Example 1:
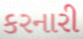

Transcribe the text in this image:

કરનારી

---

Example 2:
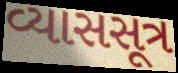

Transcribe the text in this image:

વ્યાસસૂત્ર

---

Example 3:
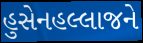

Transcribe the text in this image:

હુસેનહલ્લાજને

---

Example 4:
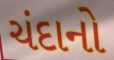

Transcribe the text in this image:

ચંદાનો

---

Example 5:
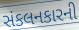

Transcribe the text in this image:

સંકલનકારની